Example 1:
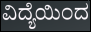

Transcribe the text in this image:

ವಿದ್ಯೆಯಿಂದ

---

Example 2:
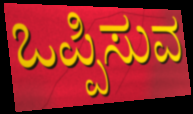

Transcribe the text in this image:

ಒಪ್ಪಿಸುವ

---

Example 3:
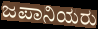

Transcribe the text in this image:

ಜಪಾನಿಯರು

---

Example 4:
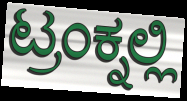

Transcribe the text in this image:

ಟ್ರಂಕ್ನಲ್ಲಿ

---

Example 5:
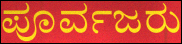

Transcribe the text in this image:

ಪೂರ್ವಜರು